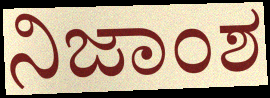
ನಿಜಾಂಶ